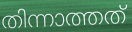
തിന്നാത്തത്